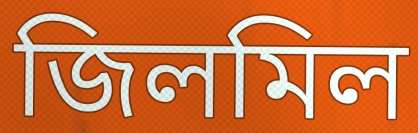
জিলমিল